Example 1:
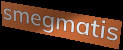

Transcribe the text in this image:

smegmatis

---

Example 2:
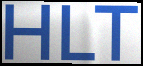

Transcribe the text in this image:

HLT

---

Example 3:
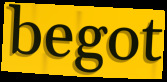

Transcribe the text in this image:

begot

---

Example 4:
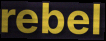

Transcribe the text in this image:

rebel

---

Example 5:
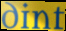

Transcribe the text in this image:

dint